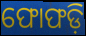
ଫୋଫଡ଼ି